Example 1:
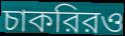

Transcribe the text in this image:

চাকরিরও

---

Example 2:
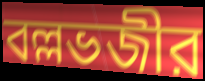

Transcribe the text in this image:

বল্লভজীর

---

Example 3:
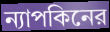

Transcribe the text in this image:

ন্যাপকিনের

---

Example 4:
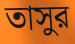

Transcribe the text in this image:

তাসুর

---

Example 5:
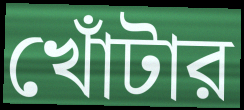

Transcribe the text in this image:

খোঁটার